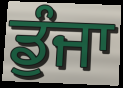
ਡੁੰਜਾ